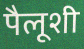
पैलूशी